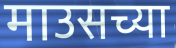
माउसच्या